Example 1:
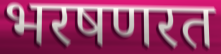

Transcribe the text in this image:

भरषणरत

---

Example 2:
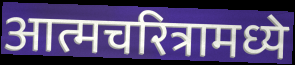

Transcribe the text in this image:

आत्मचरित्रामध्ये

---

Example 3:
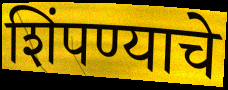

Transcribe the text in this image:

शिंपण्याचे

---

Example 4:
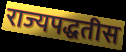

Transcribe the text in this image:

राज्यपद्धतीस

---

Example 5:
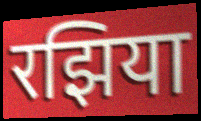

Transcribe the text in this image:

रझिया